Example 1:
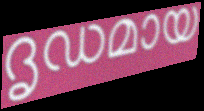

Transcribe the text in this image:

ദൃഡമായ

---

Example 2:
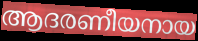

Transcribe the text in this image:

ആദരണീയനായ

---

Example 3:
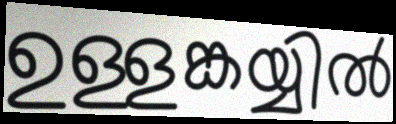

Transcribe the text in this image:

ഉള്ളങ്കയ്യിൽ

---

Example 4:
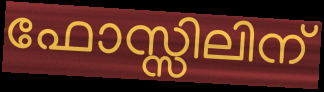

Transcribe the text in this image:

ഫോസ്സിലിന്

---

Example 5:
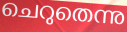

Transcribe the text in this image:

ചെറുതെന്നു